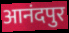
आनंदपुर